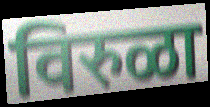
विरुळा